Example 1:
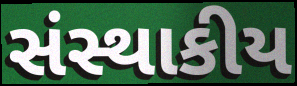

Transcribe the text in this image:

સંસ્થાકીય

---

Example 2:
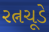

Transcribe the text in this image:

રત્નચૂડે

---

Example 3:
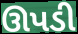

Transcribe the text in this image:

ઊપડી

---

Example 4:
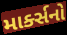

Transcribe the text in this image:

માર્ક્સનો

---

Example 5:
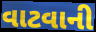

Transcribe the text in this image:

વાટવાની